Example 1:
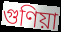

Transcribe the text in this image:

গুণিয়া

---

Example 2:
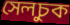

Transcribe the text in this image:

সেলচুক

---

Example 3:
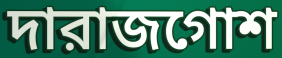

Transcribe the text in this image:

দারাজগোশ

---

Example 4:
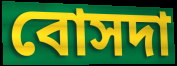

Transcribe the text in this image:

বোসদা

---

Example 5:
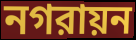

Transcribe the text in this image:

নগরায়ন